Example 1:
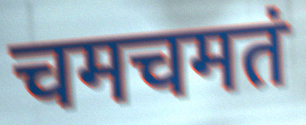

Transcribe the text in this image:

चमचमतं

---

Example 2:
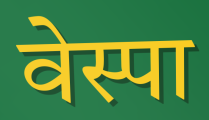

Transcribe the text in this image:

वेस्पा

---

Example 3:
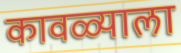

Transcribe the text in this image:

कावळ्याला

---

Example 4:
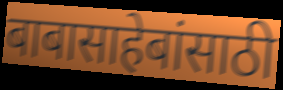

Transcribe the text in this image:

बाबासाहेबांसाठी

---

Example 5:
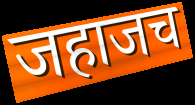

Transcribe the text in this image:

जहाजच